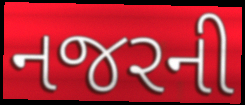
નજરની